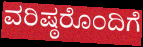
ವರಿಷ್ಠರೊಂದಿಗೆ